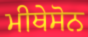
ਮੀਥੇਸੋਨ